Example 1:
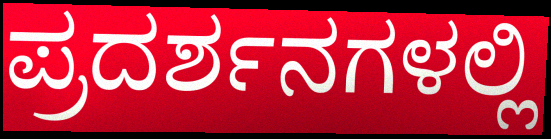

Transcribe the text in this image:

ಪ್ರದರ್ಶನಗಳಲ್ಲಿ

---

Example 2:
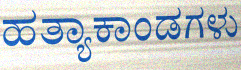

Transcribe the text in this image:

ಹತ್ಯಾಕಾಂಡಗಳು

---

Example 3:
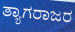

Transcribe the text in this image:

ತ್ಯಾಗರಾಜರ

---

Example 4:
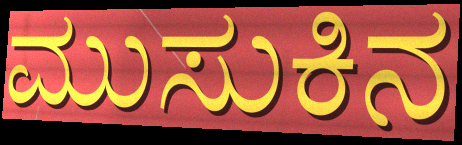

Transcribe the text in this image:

ಮುಸುಕಿನ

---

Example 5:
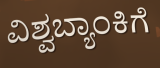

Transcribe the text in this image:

ವಿಶ್ವಬ್ಯಾಂಕಿಗೆ